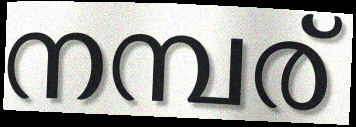
നമ്പര്